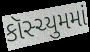
કૉસ્ચ્યુમમાં